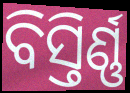
ବିସ୍ତିର୍ଣ୍ଣ